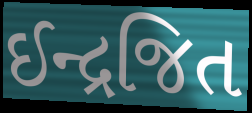
ઈન્દ્રજિત